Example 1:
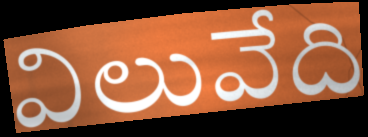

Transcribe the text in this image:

విలువేది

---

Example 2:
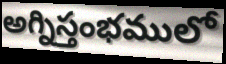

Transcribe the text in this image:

అగ్నిస్తంభములో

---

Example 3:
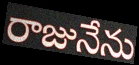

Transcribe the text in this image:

రాజునేను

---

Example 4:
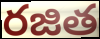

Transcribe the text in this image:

రజిత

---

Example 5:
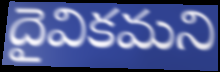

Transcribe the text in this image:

దైవికమని